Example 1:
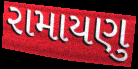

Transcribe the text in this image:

રામાયણુ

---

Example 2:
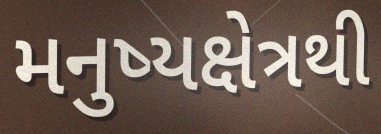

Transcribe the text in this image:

મનુષ્યક્ષેત્રથી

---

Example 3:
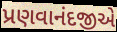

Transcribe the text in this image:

પ્રણવાનંદજીએ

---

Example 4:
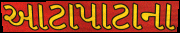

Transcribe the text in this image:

આટાપાટાના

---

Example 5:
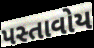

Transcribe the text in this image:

પસ્તાવોય